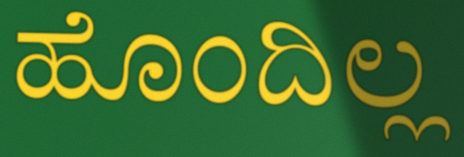
ಹೊಂದಿಲ್ಲ